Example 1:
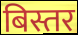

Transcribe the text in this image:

बिस्तर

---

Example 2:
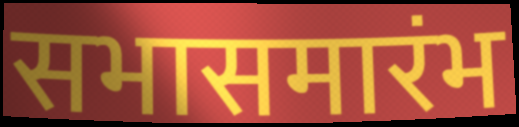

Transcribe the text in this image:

सभासमारंभ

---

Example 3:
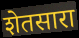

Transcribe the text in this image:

शेतसारा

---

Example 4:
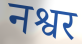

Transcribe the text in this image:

नश्वर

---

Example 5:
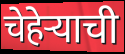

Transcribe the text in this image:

चेहेऱ्याची